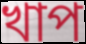
খাপ